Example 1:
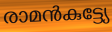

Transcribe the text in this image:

രാമൻകുട്ട്യേ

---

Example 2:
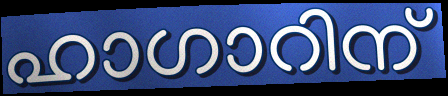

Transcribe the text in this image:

ഹാഗാറിന്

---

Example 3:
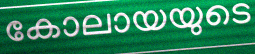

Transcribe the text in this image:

കോലായയുടെ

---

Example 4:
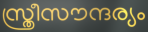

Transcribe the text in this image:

സ്ത്രീസൗന്ദര്യം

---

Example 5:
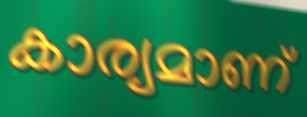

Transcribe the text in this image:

കാര്യമാണ്